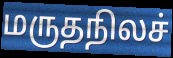
மருதநிலச்